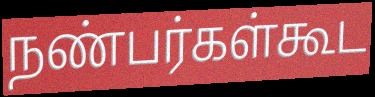
நண்பர்கள்கூட